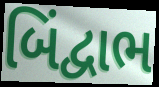
બિંદ્વાભ